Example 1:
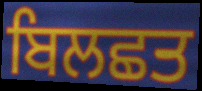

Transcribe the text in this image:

ਬਿਲਛਤ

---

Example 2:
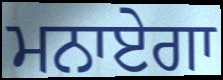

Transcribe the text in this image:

ਮਨਾਏਗਾ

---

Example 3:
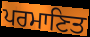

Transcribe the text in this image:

ਪਰਮਾਣਿਤ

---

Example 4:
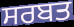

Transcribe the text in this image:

ਸਰਬਤ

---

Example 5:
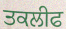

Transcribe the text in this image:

ਤਕਲੀਫ